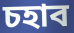
চহাব